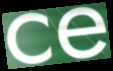
ce